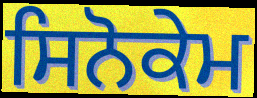
ਸਿਨੋਕੇਮ